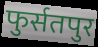
फुर्सतपुर